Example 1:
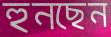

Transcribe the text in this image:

হুনছেন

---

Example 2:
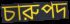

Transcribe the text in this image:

চারুপদ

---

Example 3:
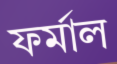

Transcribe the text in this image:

ফর্মাল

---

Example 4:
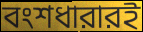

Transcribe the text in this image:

বংশধারারই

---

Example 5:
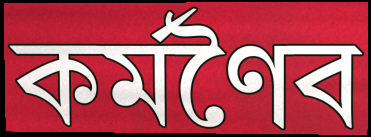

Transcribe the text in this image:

কর্মণৈব